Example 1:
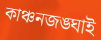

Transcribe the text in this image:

কাঞ্চনজঙ্ঘাই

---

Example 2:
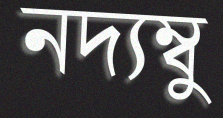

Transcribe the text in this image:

নদ্যম্বু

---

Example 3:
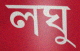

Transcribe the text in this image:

লঘু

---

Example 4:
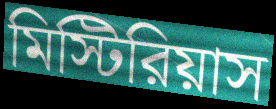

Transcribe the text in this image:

মিস্টিরিয়াস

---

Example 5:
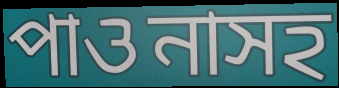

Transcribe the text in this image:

পাওনাসহ